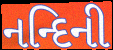
નન્દિની